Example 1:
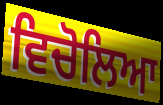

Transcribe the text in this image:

ਵਿਚੋਲਿਆ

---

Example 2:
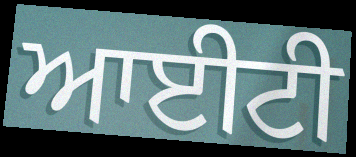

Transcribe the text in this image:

ਆਈਟੀ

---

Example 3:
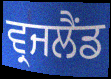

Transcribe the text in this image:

ਵ੍ਰਜਲੈਂਡ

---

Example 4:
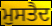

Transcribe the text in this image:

ਮੁਸਤੈਦ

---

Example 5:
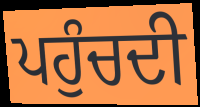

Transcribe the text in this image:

ਪਹੁੰਚਦੀ